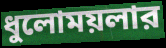
ধুলোময়লার